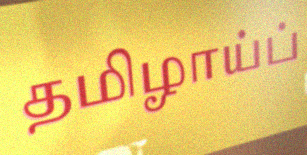
தமிழாய்ப்